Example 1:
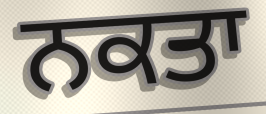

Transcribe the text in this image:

ਨਕਤਾ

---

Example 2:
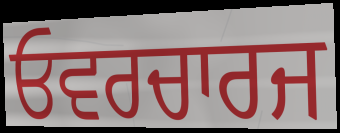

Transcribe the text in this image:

ਓਵਰਚਾਰਜ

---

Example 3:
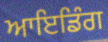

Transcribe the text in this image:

ਆਇਡਿੰਗ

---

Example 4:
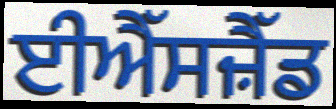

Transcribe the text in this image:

ਈਐੱਸਜ਼ੈੱਡ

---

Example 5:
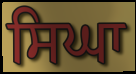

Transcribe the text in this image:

ਸਿਘਾ